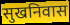
सुखनिवास